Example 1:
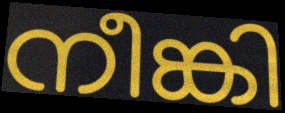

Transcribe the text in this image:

നീങ്കി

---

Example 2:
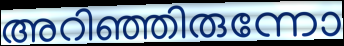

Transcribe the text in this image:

അറിഞ്ഞിരുന്നോ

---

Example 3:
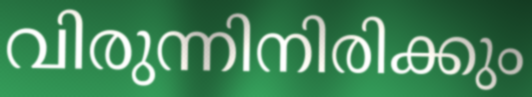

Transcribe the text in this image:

വിരുന്നിനിരിക്കും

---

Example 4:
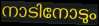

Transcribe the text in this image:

നാടിനോടും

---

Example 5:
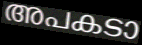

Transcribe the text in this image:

അപകടാ